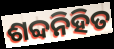
ଶବ୍ଦନିହିତ